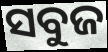
ସବୁଜ